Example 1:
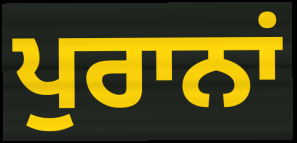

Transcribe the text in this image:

ਪੁਰਾਨਾਂ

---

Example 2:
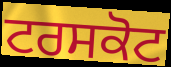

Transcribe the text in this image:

ਟਰਸਕੋਟ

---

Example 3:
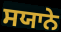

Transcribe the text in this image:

ਸਯਾਨੇ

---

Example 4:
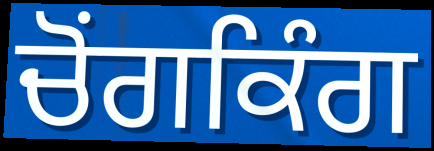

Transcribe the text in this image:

ਚੋਂਗਕਿੰਗ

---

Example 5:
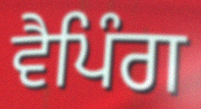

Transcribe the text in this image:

ਵੈਪਿੰਗ